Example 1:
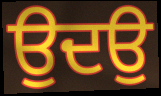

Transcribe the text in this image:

ਉਦਉ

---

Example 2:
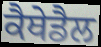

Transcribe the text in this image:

ਕੈਥੇਡੈਲ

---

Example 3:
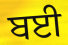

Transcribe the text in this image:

ਬਈ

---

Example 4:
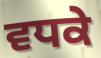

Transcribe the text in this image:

ਵਧਕੇ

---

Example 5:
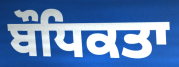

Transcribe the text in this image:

ਬੌਧਿਕਤਾ